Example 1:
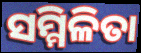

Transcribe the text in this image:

ସମ୍ମିଳିତା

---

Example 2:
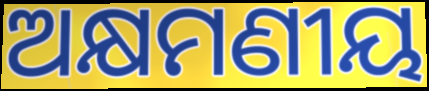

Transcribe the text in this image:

ଅକ୍ଷମଣୀୟ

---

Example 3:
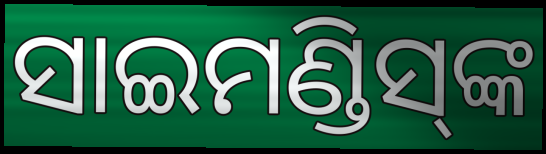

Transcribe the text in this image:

ସାଇମଣ୍ଡିସ୍‍ଙ୍କ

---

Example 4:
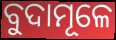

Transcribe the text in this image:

ବୁଦାମୂଳେ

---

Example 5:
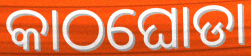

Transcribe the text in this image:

କାଠଘୋଡା